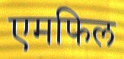
एमफिल